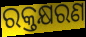
ରକ୍ତକ୍ଷରଣ